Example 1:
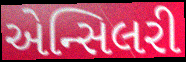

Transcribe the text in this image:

એન્સિલરી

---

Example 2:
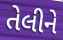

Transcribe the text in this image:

તેલીને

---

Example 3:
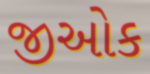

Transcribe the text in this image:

જીઓક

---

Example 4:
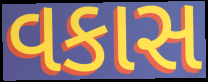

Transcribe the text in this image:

વકાસ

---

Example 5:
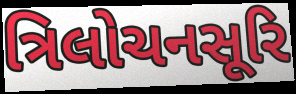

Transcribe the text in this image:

ત્રિલોચનસૂરિ